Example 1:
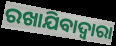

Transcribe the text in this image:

ରଖାଯିବାଦ୍ଵାରା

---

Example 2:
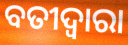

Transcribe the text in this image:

ବତୀଦ୍ୱାରା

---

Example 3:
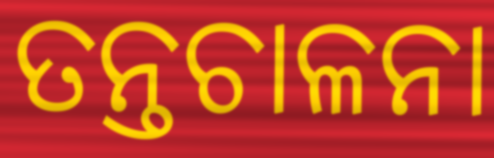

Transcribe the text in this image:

ତନ୍ତଚାଳନା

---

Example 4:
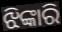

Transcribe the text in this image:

ଝିଙ୍କାରି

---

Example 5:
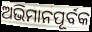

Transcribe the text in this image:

ଅଭିମାନପୂର୍ବକ